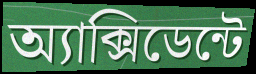
অ্যাক্সিডেন্টে